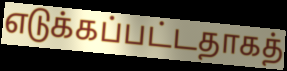
எடுக்கப்பட்டதாகத்